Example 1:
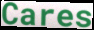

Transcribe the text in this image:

Cares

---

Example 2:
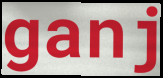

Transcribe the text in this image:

ganj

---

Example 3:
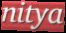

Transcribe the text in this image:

nitya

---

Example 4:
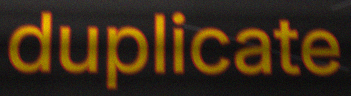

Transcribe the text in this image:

duplicate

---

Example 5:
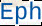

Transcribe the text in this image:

Eph